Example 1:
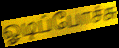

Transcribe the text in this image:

ஓடிப்போச்சு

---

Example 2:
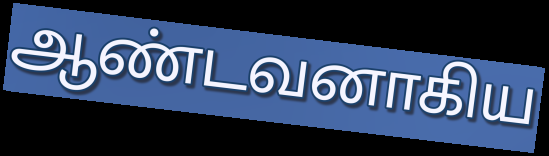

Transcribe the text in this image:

ஆண்டவனாகிய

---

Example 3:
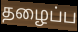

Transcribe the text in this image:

தழைப்ப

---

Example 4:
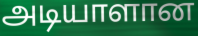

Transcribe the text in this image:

அடியாளான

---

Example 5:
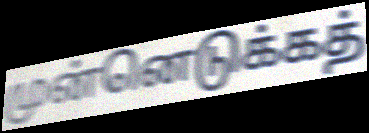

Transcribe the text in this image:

முன்னெடுக்கத்